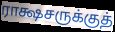
ராக்ஷசருக்குத்